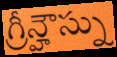
గ్రీన్హౌస్ను